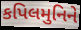
કપિલમુનિને